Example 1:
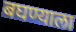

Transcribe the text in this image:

बघण्याला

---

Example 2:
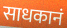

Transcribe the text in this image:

साधकानं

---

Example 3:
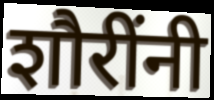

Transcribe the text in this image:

शौरींनी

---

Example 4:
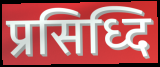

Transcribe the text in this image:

प्रसिध्दि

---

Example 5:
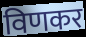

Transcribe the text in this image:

विणकर